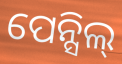
ପେନ୍ସିଲ୍